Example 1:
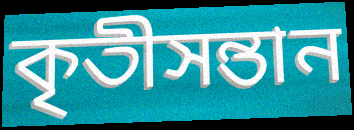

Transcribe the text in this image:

কৃতীসন্তান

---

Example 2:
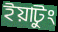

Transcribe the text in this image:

ইয়াটুং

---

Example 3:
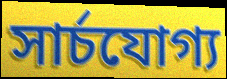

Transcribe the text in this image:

সার্চযোগ্য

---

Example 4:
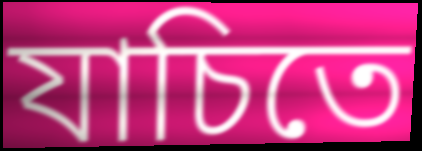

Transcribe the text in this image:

যাচিতে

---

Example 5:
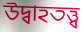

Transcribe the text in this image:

উদ্বাহতত্ত্ব